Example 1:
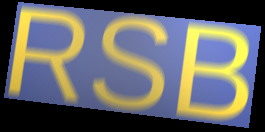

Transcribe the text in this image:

RSB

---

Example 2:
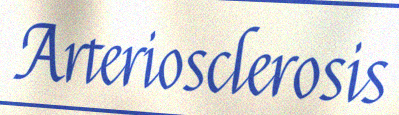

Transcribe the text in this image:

Arteriosclerosis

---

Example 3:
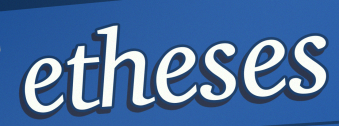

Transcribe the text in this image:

etheses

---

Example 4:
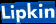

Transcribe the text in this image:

Lipkin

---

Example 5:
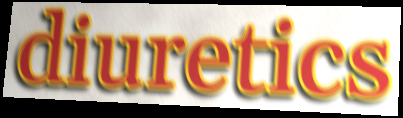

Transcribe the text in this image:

diuretics